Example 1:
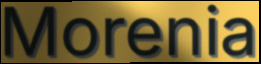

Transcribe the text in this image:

Morenia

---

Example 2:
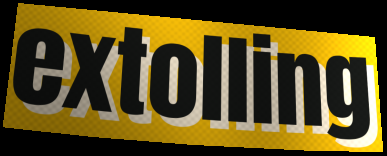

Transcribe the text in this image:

extolling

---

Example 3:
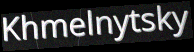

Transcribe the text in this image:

Khmelnytsky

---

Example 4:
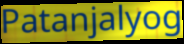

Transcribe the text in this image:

Patanjalyog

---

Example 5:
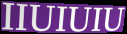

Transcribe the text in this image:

IIUIUIU